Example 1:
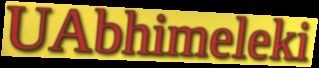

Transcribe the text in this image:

UAbhimeleki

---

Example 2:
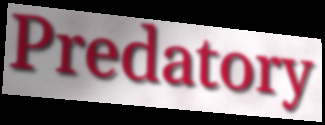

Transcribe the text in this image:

Predatory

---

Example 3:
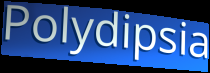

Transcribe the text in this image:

Polydipsia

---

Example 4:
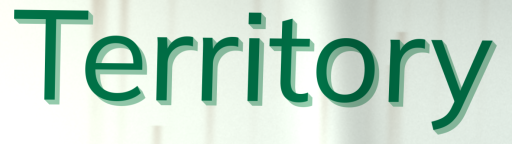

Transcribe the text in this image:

Territory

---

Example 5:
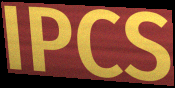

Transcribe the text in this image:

IPCS